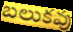
బలుకవు